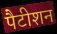
पैटीशन